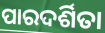
ପାରଦର୍ଶିତା